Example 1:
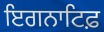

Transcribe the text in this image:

ਇਗਨਾਟਿਫ਼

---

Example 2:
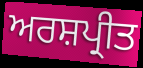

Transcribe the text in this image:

ਅਰਸ਼ਪ੍ਰੀਤ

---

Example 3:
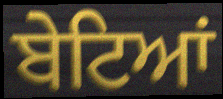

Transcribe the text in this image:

ਬੇਟਿਆਂ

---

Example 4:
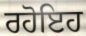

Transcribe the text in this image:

ਰਹੋਇਹ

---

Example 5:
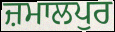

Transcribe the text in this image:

ਜ਼ਮਾਲਪੁਰ